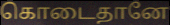
கொடைதானே